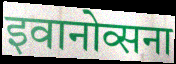
इवानोव्सना